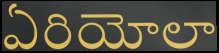
ఏరియోలా